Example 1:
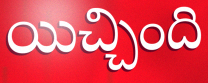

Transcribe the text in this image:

యిచ్చింది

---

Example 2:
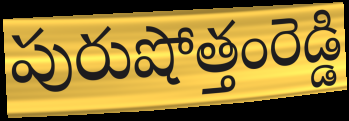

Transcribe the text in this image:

పురుషోత్తంరెడ్డి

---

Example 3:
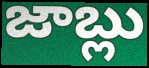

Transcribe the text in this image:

జాబ్లు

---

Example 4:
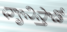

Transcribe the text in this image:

ధ్యానిస్తాడో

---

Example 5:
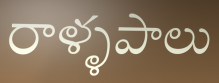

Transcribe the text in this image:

రాళ్ళపాలు